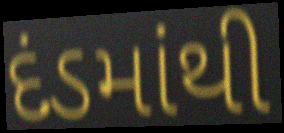
દંડમાંથી